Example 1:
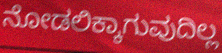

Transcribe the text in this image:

ನೋಡಲಿಕ್ಕಾಗುವುದಿಲ್ಲ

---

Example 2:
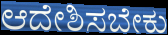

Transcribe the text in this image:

ಆದೇಶಿಸಬೇಕು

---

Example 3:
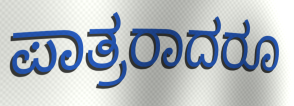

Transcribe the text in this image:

ಪಾತ್ರರಾದರೂ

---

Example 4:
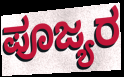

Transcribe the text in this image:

ಪೂಜ್ಯರ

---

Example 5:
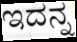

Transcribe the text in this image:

ಇದನ್ನ